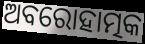
ଅବରୋହାତ୍ମକ